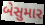
બેસુમાર